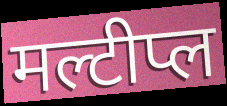
मल्टीप्ल